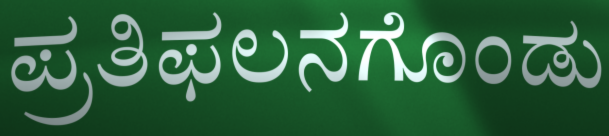
ಪ್ರತಿಫಲನಗೊಂಡು